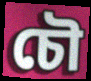
চৌ